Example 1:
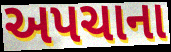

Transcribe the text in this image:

અપચાના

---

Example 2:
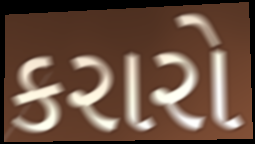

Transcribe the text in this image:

કરારો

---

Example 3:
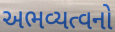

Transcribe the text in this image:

અભવ્યત્વનો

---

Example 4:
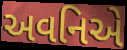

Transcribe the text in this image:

અવનિએ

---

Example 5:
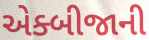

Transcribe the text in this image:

એક્બીજાની